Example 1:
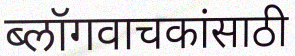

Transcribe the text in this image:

ब्लॉगवाचकांसाठी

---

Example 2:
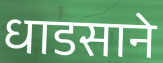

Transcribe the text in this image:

धाडसाने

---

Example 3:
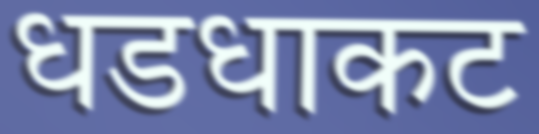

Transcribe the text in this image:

धडधाकट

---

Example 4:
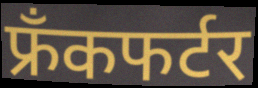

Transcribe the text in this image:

फ्रँकफर्टर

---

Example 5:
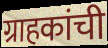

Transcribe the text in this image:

ग्राहकांची